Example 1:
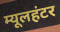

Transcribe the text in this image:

म्यूलहंटर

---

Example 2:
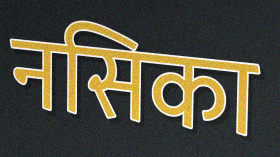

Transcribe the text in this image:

नसिका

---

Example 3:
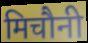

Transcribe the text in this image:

मिचौनी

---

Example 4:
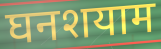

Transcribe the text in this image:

घनशयाम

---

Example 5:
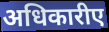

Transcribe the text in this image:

अधिकारीए